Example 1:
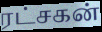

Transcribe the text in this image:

ரட்சகன்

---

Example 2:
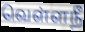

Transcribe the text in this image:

வெள்ளநீ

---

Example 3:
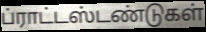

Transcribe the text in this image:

ப்ராட்டஸ்டண்டுகள்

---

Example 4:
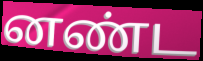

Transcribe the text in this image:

னண்ட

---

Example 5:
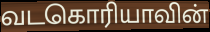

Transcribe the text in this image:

வடகொரியாவின்